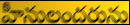
హీనులందరును